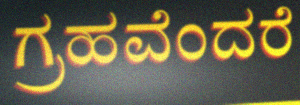
ಗ್ರಹವೆಂದರೆ